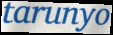
tarunyo